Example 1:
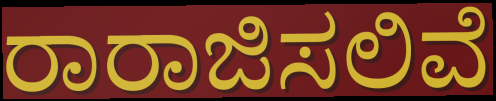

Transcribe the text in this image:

ರಾರಾಜಿಸಲಿವೆ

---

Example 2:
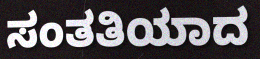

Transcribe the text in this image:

ಸಂತತಿಯಾದ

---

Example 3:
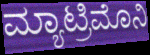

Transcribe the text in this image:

ಮ್ಯಾಟ್ರಿಮೊನಿ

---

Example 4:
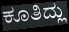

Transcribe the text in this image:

ಕೂತಿದ್ಲು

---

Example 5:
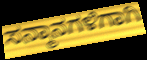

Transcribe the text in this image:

ಸನ್ಮಾನಗಳಿಗಾಗಿ